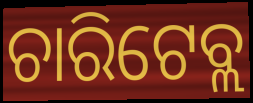
ଚାରିଟେବ୍ଲ